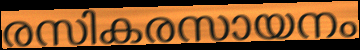
രസികരസായനം